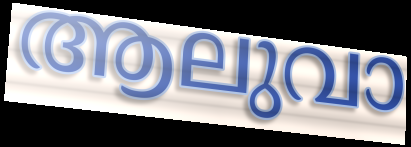
ആലുവാ